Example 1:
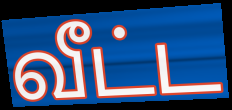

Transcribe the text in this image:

வீட்ட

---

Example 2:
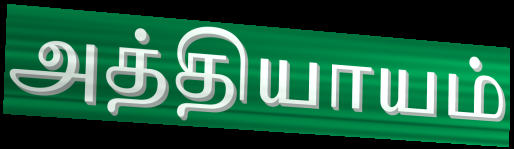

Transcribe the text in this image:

அத்தியாயம்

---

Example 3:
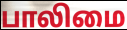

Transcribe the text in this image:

பாலிமை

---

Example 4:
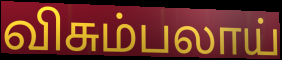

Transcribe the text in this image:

விசும்பலாய்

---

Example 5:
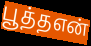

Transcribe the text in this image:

பூத்தஎன்